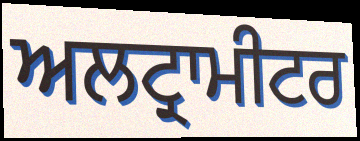
ਅਲਟ੍ਰਾਮੀਟਰ